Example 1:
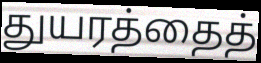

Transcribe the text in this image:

துயரத்தைத்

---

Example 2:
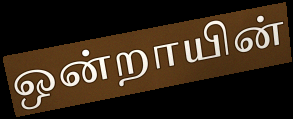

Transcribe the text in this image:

ஒன்றாயின்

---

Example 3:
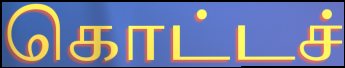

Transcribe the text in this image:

கொட்டச்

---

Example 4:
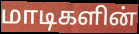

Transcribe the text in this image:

மாடிகளின்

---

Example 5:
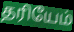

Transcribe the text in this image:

தரியேம்